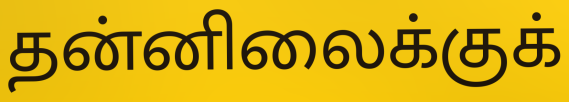
தன்னிலைக்குக்